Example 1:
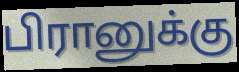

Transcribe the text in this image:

பிரானுக்கு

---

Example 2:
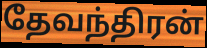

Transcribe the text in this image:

தேவந்திரன்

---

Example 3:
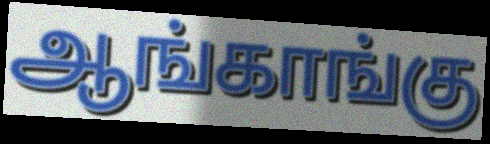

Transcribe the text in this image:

ஆங்காங்கு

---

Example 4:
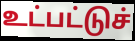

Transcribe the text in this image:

உட்பட்டுச்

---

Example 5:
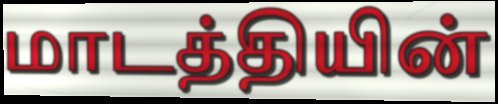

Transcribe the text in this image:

மாடத்தியின்